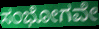
ಸಂಭೋಗವೇ